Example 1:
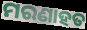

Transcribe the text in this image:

ମରଣାହତ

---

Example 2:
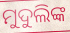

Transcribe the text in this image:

ମୁଦୁଲିଙ୍କ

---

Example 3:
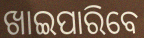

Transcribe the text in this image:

ଖାଇପାରିବେ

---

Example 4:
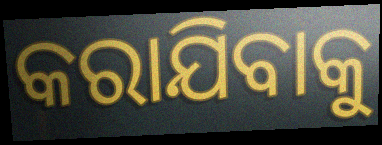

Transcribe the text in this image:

କରାଯିବାକୁ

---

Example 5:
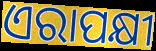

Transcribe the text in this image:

ଏରାପକ୍ଷୀ